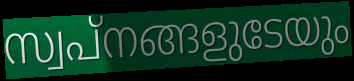
സ്വപ്നങ്ങളുടേയും